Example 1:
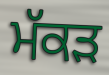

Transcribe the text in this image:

ਮੱਕੜ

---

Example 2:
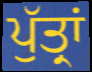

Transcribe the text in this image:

ਪੁੱਤ੍ਰਾਂ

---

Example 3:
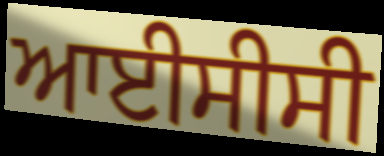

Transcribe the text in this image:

ਆਈਸੀਸੀ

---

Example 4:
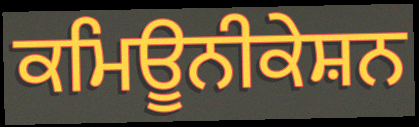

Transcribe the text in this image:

ਕਮਿਊਨੀਕੇਸ਼ਨ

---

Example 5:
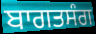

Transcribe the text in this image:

ਬਾਗਤਸੰਗ